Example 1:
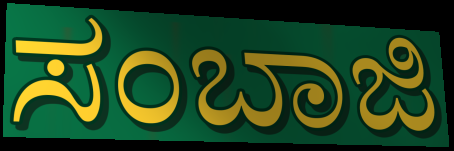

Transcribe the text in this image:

ಸಂಬಾಜಿ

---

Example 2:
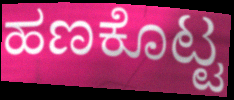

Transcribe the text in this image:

ಹಣಕೊಟ್ಟ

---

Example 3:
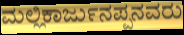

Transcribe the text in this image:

ಮಲ್ಲಿಕಾರ್ಜುನಪ್ಪನವರು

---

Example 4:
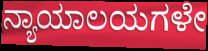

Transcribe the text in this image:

ನ್ಯಾಯಾಲಯಗಳೇ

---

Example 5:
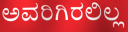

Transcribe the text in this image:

ಅವರಿಗಿರಲಿಲ್ಲ